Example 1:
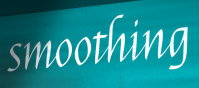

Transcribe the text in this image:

smoothing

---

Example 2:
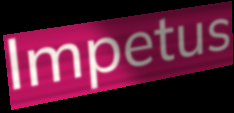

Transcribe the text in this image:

Impetus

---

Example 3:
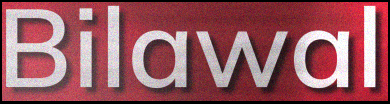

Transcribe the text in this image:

Bilawal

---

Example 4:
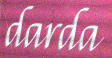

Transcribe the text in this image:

darda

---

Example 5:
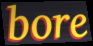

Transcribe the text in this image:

bore